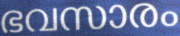
ഭവസാരം